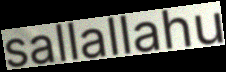
sallallahu